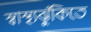
স্বাস্থ্যঝুঁকিতে